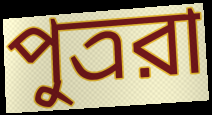
পুত্ররা